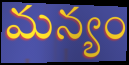
మన్యం